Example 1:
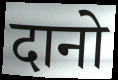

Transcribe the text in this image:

दानो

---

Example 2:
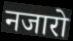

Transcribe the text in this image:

नजारो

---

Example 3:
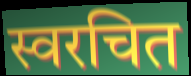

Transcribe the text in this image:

स्वरचित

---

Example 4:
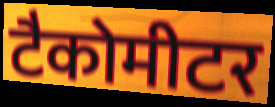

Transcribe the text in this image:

टैकोमीटर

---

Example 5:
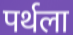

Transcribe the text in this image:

पर्थला